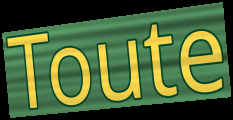
Toute